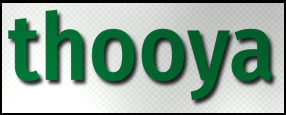
thooya